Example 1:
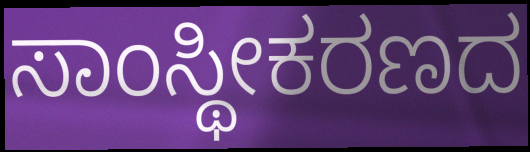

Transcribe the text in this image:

ಸಾಂಸ್ಥೀಕರಣದ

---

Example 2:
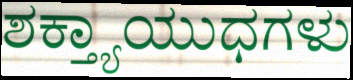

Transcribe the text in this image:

ಶಕ್ತ್ಯಾಯುಧಗಳು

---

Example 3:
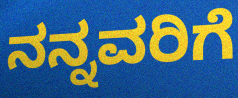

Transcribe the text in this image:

ನನ್ನವರಿಗೆ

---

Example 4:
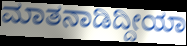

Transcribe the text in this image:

ಮಾತನಾಡಿದ್ದೀಯಾ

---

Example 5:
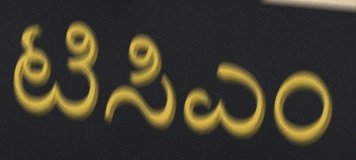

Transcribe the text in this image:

ಟಿಸಿಎಂ